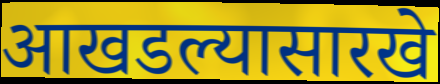
आखडल्यासारखे